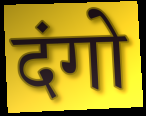
दंगो